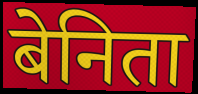
बेनिता